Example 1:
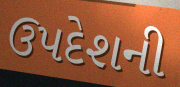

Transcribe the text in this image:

ઉપદેશની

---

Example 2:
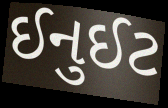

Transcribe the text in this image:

ઈનુઈટ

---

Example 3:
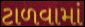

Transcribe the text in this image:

ટાળવામાં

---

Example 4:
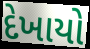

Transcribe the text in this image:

દેખાયો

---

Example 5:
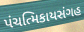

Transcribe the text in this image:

પંચત્મિકાયસંગહ